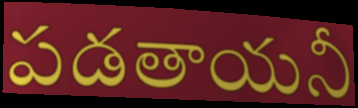
పడతాయనీ